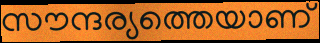
സൗന്ദര്യത്തെയാണ്